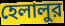
হেলালুর